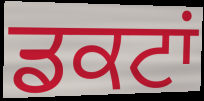
ਡਕਟਾਂ